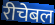
रीचेबल